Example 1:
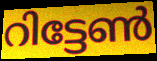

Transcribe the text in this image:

റിട്ടേൺ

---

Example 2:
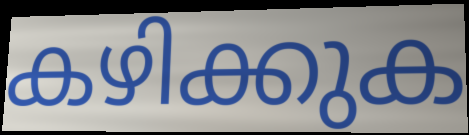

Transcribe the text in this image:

കഴിക്കുക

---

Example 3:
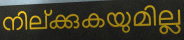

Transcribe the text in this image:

നില്ക്കുകയുമില്ല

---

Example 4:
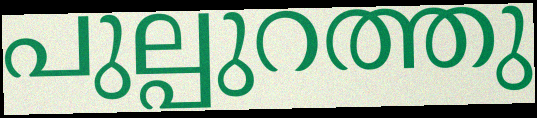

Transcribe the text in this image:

പുല്പുറത്തു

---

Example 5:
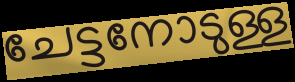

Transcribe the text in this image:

ചേട്ടനോടുള്ള